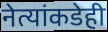
नेत्यांकडेही